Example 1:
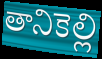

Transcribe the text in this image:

తానికెల్లి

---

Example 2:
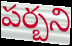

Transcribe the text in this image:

పర్బని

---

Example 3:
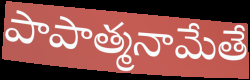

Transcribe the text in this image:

పాపాత్మనామేతే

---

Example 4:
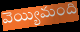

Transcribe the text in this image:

వెయ్యిమంది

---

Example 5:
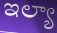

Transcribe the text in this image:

ఇల్యా